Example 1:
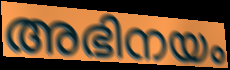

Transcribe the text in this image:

അഭിനയം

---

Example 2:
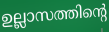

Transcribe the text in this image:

ഉല്ലാസത്തിന്റെ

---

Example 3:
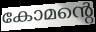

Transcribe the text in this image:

കോമന്റെ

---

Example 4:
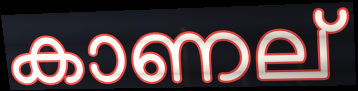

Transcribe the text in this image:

കാണല്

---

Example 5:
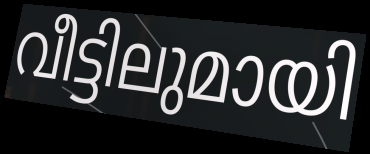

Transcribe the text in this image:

വീട്ടിലുമായി